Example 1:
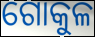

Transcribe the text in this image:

ଗୋକୁଳ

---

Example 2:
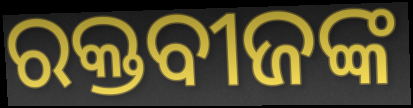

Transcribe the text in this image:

ରକ୍ତବୀଜଙ୍କ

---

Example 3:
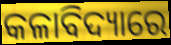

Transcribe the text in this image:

କଳାବିଦ୍ୟାରେ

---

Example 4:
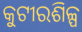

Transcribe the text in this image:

କୁଟୀରଶିଳ୍ପ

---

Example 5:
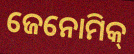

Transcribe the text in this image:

ଜେନୋମିକ୍